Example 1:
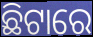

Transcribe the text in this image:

ଛିଟାରେ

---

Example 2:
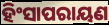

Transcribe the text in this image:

ହିଂସାପରାୟଣ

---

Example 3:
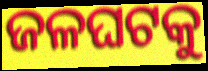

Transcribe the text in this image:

ଜଳଘଟକୁ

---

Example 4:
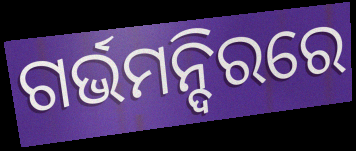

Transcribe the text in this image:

ଗର୍ଭମନ୍ଦିରରେ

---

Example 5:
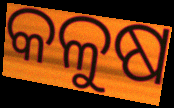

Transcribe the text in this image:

କଳୁଷ